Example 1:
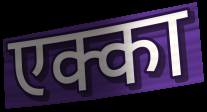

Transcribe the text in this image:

एक्का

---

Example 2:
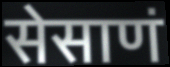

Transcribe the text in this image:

सेसाणं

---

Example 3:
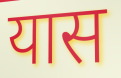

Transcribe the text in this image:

यास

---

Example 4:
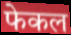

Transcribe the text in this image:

फेकल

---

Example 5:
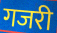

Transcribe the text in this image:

गजरी